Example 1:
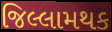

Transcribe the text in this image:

જિલ્લામથક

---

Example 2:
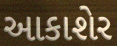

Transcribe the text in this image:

આકાશેર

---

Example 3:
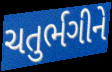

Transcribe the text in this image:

ચતુર્ભગીને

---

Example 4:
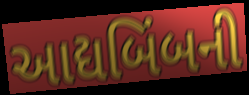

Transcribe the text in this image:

આદ્યબિંબની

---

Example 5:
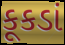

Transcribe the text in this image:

કૂકડાં